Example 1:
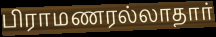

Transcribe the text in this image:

பிராமணரல்லாதார்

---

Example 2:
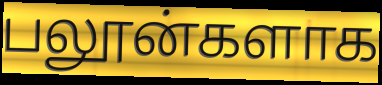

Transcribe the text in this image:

பலூன்களாக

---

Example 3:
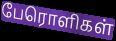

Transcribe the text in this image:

பேரொளிகள்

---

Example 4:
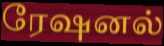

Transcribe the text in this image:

ரேஷனல்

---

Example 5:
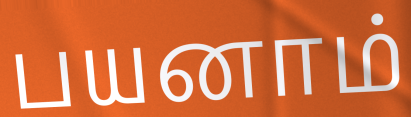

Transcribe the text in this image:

பயனாம்